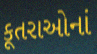
કૂતરાઓનાં